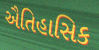
ઐતિહાસિક